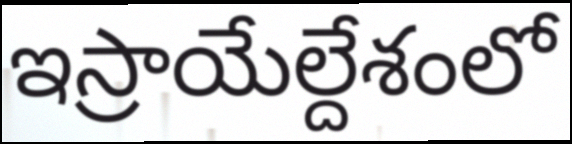
ఇస్రాయేల్దేశంలో